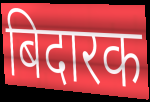
बिदारक